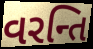
વરન્તિ